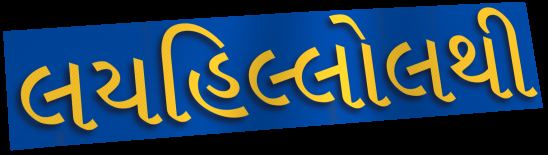
લયહિલ્લોલથી